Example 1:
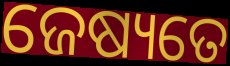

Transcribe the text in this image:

ଜେଷ୍ୟତେ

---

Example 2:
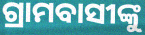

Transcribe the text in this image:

ଗ୍ରାମବାସୀଙ୍କୁ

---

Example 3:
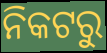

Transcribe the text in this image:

ନିକଟରୁ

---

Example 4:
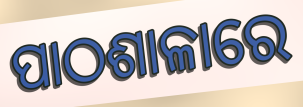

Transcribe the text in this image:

ପାଠଶାଳାରେ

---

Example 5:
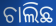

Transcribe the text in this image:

ଚାଲିଛ